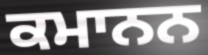
ਕਮਾਨਨ